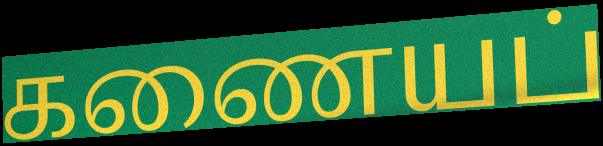
கணையப்